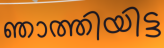
ഞാത്തിയിട്ട